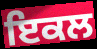
ਇਕਲ